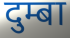
दुम्बा